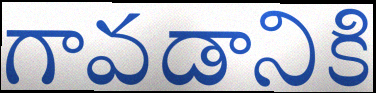
గావడానికి